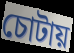
চোটায়